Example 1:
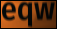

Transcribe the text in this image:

eqw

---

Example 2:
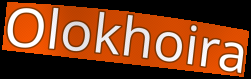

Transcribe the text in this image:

Olokhoira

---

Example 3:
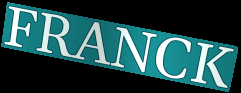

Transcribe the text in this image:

FRANCK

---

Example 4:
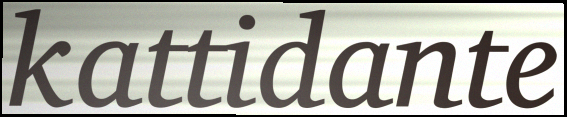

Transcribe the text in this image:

kattidante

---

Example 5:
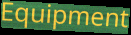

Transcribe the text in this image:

Equipment